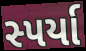
સ્પર્યા